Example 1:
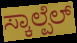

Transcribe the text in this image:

ಸ್ಕಾಲ್ಪೆಲ್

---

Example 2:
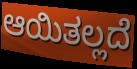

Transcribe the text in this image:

ಆಯಿತಲ್ಲದೆ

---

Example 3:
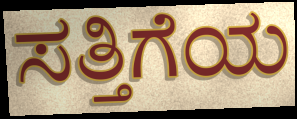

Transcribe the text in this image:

ಸತ್ತಿಗೆಯ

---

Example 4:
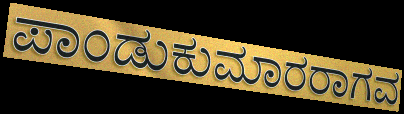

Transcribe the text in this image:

ಪಾಂಡುಕುಮಾರರಾಗವ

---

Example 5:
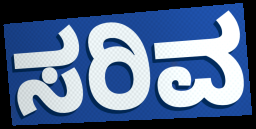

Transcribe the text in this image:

ಸರಿವ